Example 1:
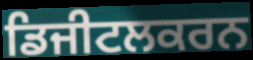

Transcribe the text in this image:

ਡਿਜੀਟਲਕਰਨ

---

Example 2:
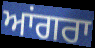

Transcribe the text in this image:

ਆਂਗਰਾ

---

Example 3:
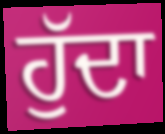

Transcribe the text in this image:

ਹੁੱਦਾ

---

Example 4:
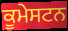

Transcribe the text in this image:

ਕੂਮੇਸਟਨ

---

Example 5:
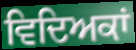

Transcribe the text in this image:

ਵਿਦਿਅਕਾਂ